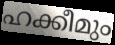
ഹക്കീമും